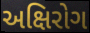
અક્ષિરોગ